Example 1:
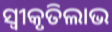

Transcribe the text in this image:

ସ୍ଵୀକୃତିଲାଭ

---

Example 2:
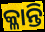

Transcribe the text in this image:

କ୍ଳାନ୍ତି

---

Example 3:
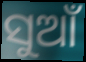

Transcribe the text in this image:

ସୁଆଁ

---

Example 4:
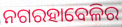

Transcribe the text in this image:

ନଗରହାବେଳିର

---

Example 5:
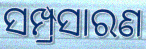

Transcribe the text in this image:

ସମ୍ପ୍ରସାରଣ